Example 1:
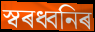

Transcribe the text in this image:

স্বৰধ্বনিৰ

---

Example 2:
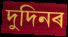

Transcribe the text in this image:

দুদিনৰ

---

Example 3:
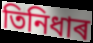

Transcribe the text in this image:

তিনিধাৰ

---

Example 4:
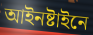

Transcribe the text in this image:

আইনষ্টাইনে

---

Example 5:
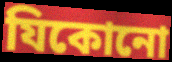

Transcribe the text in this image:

যিকোনো